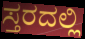
ಸ್ತರದಲ್ಲಿ